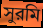
সুরমি